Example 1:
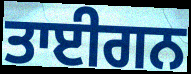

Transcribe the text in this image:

ਤਾਈਗਨ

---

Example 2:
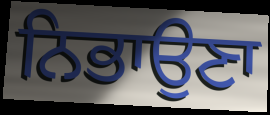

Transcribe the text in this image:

ਨਿਭਾਉਣਾ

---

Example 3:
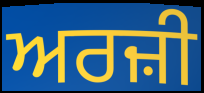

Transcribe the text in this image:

ਅਰਜ਼ੀ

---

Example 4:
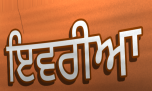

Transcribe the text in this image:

ਇਵਰੀਆ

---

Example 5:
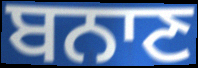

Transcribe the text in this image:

ਬਨਾਣ